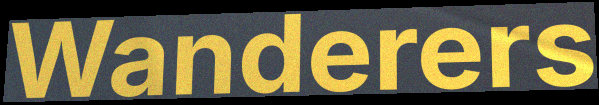
Wanderers